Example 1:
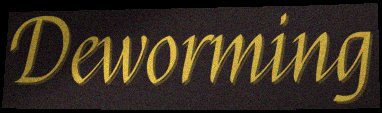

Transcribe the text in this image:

Deworming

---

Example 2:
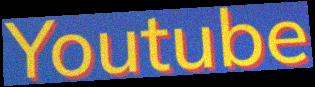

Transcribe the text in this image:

Youtube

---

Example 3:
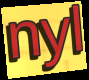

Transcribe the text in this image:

nyl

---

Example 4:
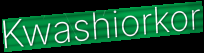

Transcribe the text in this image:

Kwashiorkor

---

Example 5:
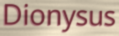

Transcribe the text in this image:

Dionysus